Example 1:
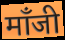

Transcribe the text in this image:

मॉंजी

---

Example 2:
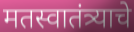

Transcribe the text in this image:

मतस्वातंत्र्याचे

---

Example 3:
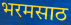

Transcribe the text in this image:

भरमसाठ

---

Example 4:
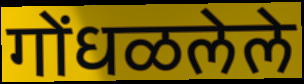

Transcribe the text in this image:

गोंधळलेले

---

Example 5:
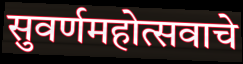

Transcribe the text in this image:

सुवर्णमहोत्सवाचे